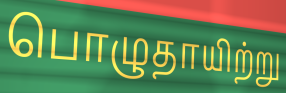
பொழுதாயிற்று